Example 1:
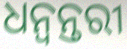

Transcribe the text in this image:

ଧନ୍ବନ୍ତରୀ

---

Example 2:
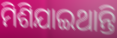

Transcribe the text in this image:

ମିଶିଯାଇଥାନ୍ତି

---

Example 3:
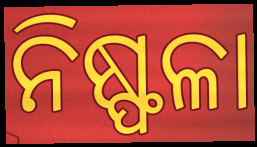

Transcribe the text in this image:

ନିଷ୍ଫଳା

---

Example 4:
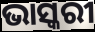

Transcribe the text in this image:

ଭାସ୍କରୀ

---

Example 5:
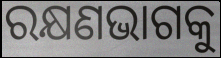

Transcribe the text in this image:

ରକ୍ଷଣଭାଗକୁ